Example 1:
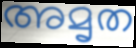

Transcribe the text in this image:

അമൃത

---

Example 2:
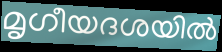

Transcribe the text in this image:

മൃഗീയദശയിൽ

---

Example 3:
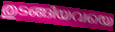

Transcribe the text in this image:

തുടങ്ങിയവയെ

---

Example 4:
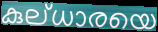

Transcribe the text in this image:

കുല്ധാരയെ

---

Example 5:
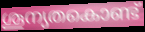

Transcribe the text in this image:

ശൂന്യതകൊണ്ട്